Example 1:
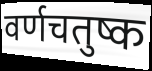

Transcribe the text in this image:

वर्णचतुष्क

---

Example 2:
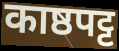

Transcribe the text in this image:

काष्ठपट्ट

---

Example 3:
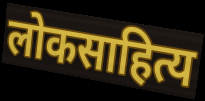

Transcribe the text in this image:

लोकसाहित्य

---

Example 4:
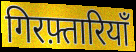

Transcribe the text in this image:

गिरफ़्तारियाँ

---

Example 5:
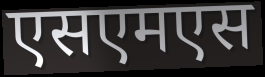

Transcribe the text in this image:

एसएमएस